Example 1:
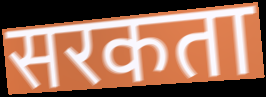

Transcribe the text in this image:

सरकता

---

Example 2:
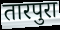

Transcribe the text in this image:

तारपुरा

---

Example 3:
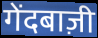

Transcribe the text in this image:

गेंदबाज़ी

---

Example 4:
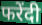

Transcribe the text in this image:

फरेंदी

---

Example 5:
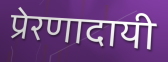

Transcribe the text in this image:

प्रेरणादायी